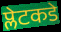
प्लेटकडे